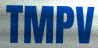
TMPV